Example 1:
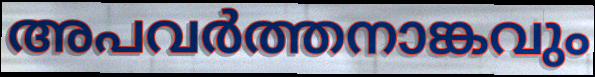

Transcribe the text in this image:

അപവർത്തനാങ്കവും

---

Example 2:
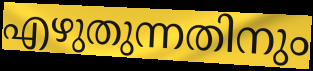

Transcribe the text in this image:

എഴുതുന്നതിനും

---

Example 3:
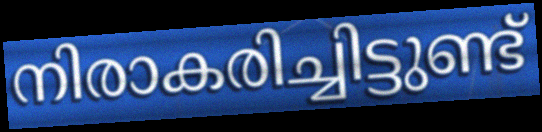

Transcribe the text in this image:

നിരാകരിച്ചിട്ടുണ്ട്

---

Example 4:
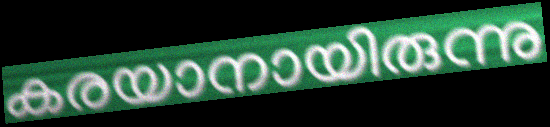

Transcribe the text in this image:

കരയാനായിരുന്നു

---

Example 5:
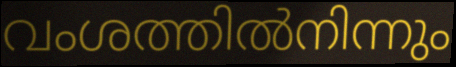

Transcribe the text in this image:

വംശത്തിൽനിന്നും